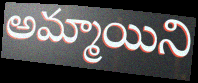
అమ్మాయిని